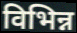
विभिन्न